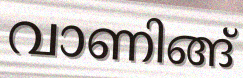
വാണിങ്ങ്